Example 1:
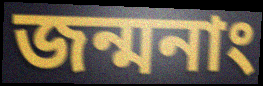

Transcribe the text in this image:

জন্মনাং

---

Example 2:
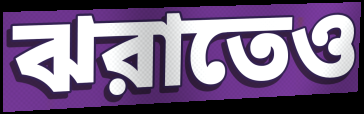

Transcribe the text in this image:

ঝরাতেও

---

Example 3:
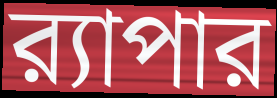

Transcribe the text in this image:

র‍্যাপার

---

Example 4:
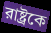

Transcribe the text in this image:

রাষ্ট্রকে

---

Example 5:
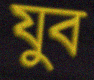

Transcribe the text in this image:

যুব